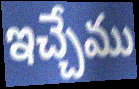
ఇచ్చేము